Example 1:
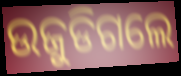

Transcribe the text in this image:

ଉଜୁଡିଗଲେ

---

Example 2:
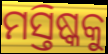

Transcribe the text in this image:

ମସ୍ତିଷ୍କକୁ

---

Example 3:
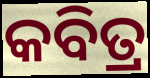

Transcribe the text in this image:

କବିତ୍ର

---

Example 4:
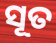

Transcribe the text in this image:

ସୂତ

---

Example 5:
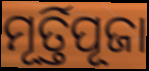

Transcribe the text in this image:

ମୂର୍ତ୍ତିପୂଜା